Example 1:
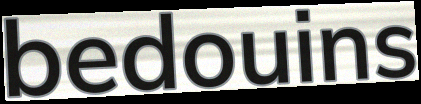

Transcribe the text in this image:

bedouins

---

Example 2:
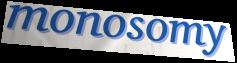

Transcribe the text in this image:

monosomy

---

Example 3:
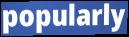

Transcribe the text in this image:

popularly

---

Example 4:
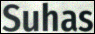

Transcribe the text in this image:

Suhas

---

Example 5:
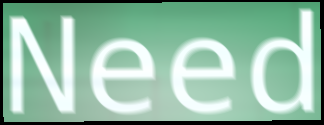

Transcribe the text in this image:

Need